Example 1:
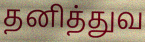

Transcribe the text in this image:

தனித்துவ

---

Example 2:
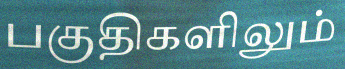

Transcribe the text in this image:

பகுதிகளிலும்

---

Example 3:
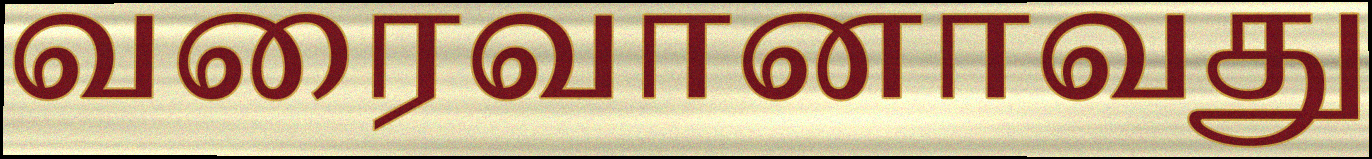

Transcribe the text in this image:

வரைவானாவது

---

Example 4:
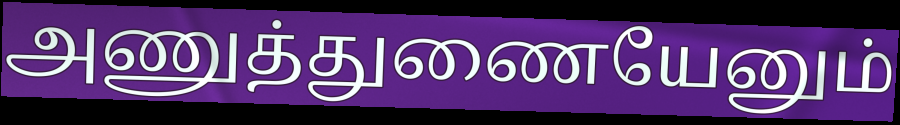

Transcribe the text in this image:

அணுத்துணையேனும்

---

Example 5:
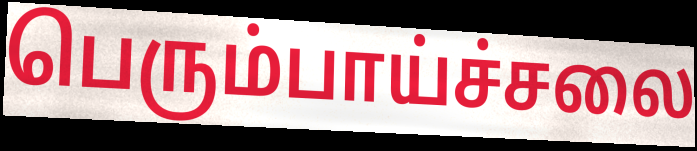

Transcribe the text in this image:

பெரும்பாய்ச்சலை